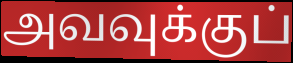
அவவுக்குப்